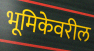
भूमिकेवरील